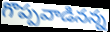
గొప్పవాడినన్న